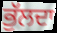
ਭੁੱਲਦਾ